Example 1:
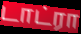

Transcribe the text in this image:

டாட்ரா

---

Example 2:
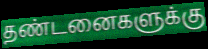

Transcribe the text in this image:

தண்டனைகளுக்கு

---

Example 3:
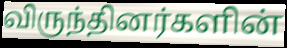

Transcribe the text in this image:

விருந்தினர்களின்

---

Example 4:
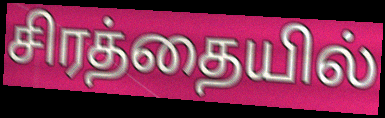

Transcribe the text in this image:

சிரத்தையில்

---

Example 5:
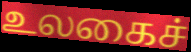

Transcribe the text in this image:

உலகைச்